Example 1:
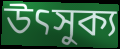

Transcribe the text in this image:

উৎসুক্য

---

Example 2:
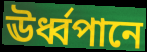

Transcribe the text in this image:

ঊর্ধ্বপানে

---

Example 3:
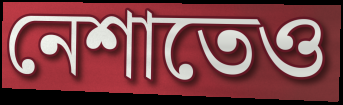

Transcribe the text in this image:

নেশাতেও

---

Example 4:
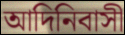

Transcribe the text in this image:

আদিনিবাসী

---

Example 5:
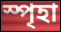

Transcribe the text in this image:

স্পৃহা